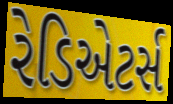
રેડિએટર્સ